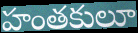
హంతకులూ